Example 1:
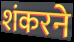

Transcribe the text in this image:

शंकरने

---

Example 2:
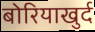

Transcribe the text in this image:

बोरियाखुर्द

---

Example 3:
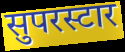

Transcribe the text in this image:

सुपरस्टार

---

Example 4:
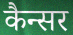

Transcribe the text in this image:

कैन्सर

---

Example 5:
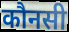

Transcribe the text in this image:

कौनसी